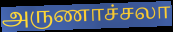
அருணாச்சலா